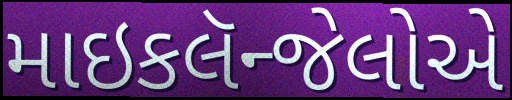
માઇકલૅન્જેલોએ